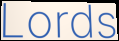
Lords